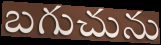
బగుచును